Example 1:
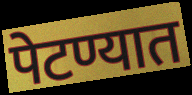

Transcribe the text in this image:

पेटण्यात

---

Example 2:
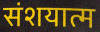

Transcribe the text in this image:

संशयात्म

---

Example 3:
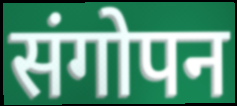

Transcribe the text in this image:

संगोपन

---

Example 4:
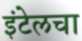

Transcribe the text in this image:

इंटेलचा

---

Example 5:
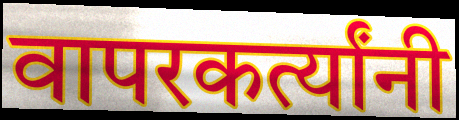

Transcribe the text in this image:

वापरकर्त्यांनी